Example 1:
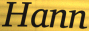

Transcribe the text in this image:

Hann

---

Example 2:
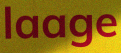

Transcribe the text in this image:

laage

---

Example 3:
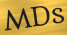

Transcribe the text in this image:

MDs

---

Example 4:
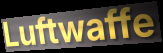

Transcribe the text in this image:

Luftwaffe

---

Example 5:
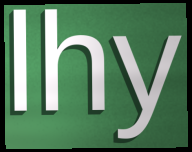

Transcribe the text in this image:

lhy